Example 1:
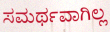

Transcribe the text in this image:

ಸಮರ್ಥವಾಗಿಲ್ಲ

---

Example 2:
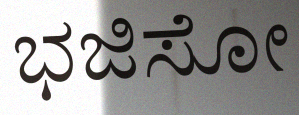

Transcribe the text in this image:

ಭಜಿಸೋ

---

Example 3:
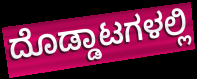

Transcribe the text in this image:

ದೊಡ್ಡಾಟಗಳಲ್ಲಿ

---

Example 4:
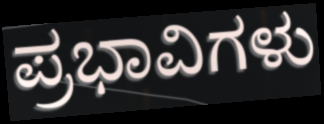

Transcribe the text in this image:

ಪ್ರಭಾವಿಗಳು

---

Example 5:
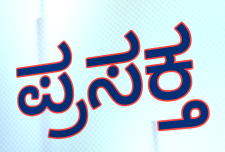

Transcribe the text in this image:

ಪ್ರಸಕ್ತ